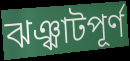
ঝঞ্ঝাটপূর্ণ